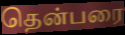
தென்பரை